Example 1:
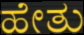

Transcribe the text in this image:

ಹೇತು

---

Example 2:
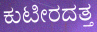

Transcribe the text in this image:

ಕುಟೀರದತ್ತ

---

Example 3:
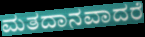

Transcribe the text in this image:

ಮತದಾನವಾದರೆ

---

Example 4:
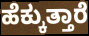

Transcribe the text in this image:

ಹೆಕ್ಕುತ್ತಾರೆ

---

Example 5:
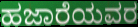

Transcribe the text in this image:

ಹಜಾರೆಯವರ